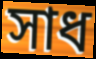
সাধ